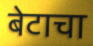
बेटाचा